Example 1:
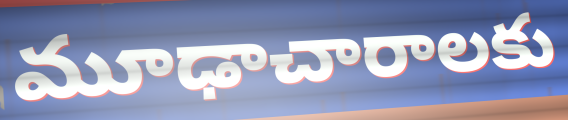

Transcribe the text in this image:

మూఢాచారాలకు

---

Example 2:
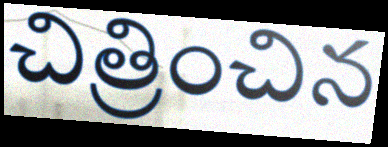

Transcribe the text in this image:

చిత్రించిన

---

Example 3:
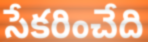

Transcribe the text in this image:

సేకరించేది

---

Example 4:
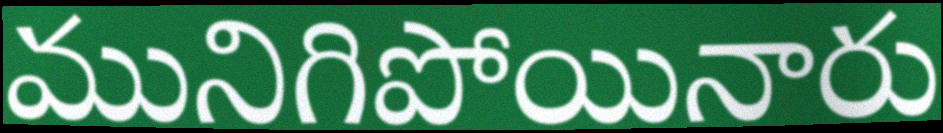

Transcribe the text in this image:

మునిగిపోయినారు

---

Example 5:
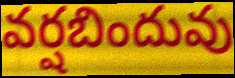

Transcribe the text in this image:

వర్షబిందువు